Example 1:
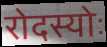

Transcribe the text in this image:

रोदस्योः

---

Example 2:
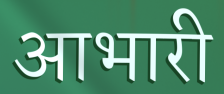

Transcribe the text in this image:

आभारी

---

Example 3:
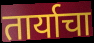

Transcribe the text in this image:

तार्याचा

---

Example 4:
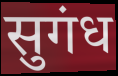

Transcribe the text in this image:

सुगंध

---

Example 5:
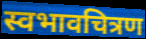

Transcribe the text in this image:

स्वभावचित्रण